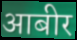
आबीर